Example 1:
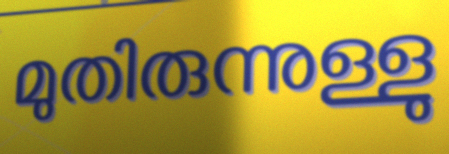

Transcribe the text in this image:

മുതിരുന്നുള്ളു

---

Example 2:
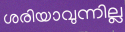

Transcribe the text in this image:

ശരിയാവുന്നില്ല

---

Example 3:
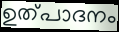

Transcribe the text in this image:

ഉത്പാദനം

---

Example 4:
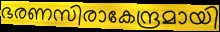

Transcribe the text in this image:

ഭരണസിരാകേന്ദ്രമായി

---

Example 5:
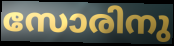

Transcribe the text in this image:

സോരിനു